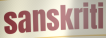
sanskriti